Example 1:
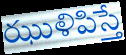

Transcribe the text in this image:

ఝుళిపిస్తే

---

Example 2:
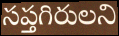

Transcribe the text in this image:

సప్తగిరులని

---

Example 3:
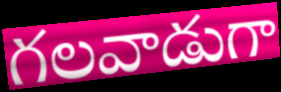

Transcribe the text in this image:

గలవాడుగా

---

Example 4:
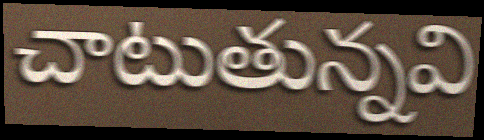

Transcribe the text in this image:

చాటుతున్నవి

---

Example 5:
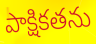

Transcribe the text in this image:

పాక్షికతను